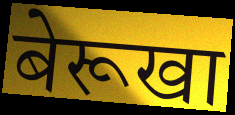
बेरूखा